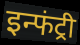
इन्फंट्री